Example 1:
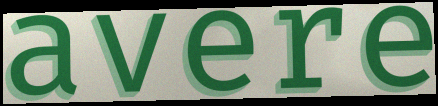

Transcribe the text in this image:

avere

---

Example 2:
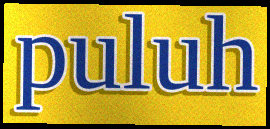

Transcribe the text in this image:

puluh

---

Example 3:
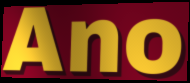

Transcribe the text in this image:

Ano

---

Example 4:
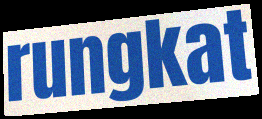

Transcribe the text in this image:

rungkat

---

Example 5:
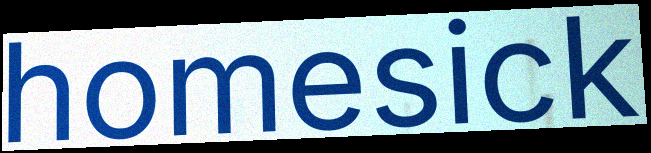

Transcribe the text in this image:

homesick